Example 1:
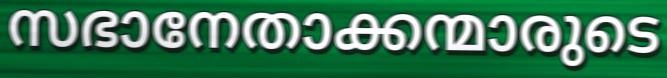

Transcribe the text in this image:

സഭാനേതാക്കന്മാരുടെ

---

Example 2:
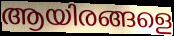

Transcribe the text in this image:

ആയിരങ്ങളെ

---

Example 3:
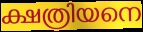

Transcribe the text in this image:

ക്ഷത്രിയനെ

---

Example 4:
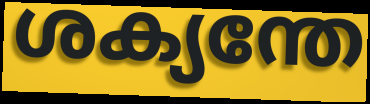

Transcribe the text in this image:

ശക്യന്തേ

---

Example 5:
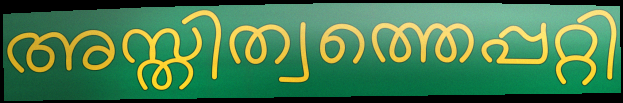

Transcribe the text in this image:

അസ്തിത്വത്തെപ്പറ്റി